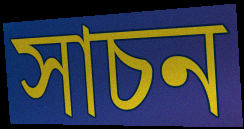
সাচন